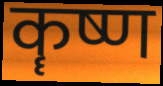
कॄष्ण